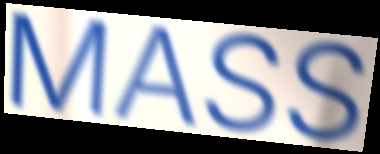
MASS